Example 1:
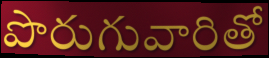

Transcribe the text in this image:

పొరుగువారితో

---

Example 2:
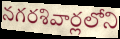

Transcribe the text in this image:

నగరశివార్లలోని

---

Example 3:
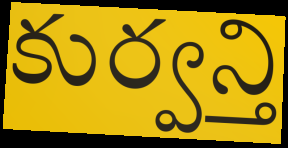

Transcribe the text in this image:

కుర్వన్తి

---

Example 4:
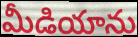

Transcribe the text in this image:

మీడియాను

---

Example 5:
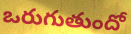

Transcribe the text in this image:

ఒరుగుతుందో